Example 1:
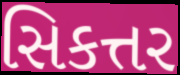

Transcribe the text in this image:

સિકત્તર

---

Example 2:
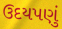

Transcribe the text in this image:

ઉદયપણું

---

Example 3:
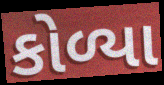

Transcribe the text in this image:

કોળ્યા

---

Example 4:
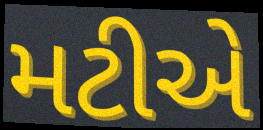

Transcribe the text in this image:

મટીએ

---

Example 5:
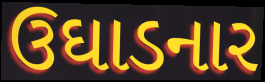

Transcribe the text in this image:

ઉઘાડનાર